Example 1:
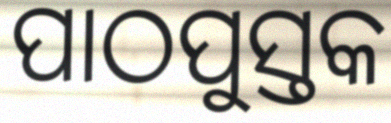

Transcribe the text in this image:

ପାଠପୁସ୍ତକ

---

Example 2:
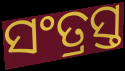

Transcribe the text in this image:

ସଂତ୍ରସ୍ତ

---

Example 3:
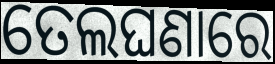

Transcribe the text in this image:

ତେଲଘଣାରେ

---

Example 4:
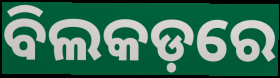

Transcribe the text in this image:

ବିଲକଡ଼ରେ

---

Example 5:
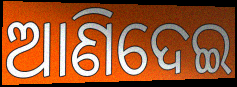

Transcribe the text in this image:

ଆଣିଦେଇ